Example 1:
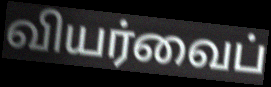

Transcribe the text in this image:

வியர்வைப்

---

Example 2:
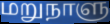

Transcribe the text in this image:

மறுநாளு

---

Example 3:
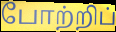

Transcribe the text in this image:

போற்றிப்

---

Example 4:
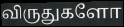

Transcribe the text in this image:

விருதுகளோ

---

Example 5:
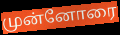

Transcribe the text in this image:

முன்னோரை